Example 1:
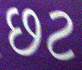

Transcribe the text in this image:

છટ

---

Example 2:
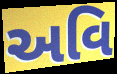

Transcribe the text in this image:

અવિ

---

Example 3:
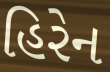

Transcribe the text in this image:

હિરેન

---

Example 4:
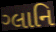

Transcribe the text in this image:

ગ્લાનિ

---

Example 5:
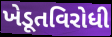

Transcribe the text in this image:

ખેડૂતવિરોધી